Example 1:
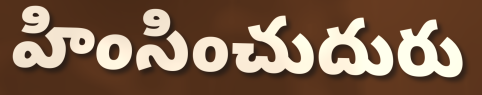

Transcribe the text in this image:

హింసించుదురు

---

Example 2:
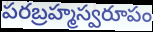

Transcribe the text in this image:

పరబ్రహ్మస్వరూపం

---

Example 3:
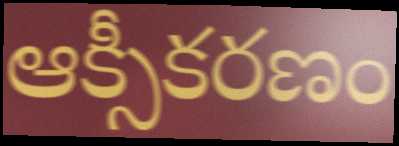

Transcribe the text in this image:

ఆక్సీకరణం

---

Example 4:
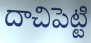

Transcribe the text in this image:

దాచిపెట్టి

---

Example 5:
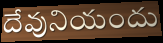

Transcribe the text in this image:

దేవునియందు